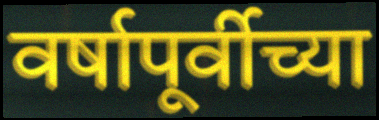
वर्षापूर्वीच्या